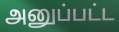
அனுப்பட்ட